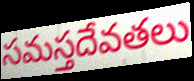
సమస్తదేవతలు